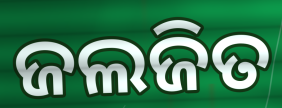
ଜଲଜିତ